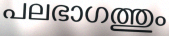
പലഭാഗത്തും